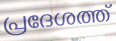
പ്രദേശത്ത്